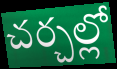
చర్చల్లో